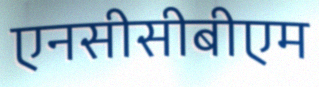
एनसीसीबीएम